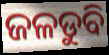
ଜଳଡୁବି